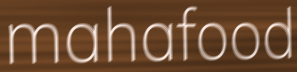
mahafood